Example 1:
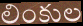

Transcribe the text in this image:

లింకుల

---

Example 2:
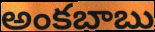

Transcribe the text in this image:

అంకబాబు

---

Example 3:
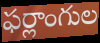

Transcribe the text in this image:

ఫర్లాంగుల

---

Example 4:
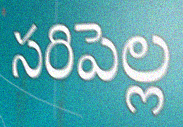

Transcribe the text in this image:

సరిపెల్ల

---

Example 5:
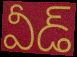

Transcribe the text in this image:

వీడ్